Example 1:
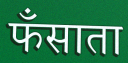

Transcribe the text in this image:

फँसाता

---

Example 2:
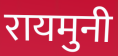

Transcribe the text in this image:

रायमुनी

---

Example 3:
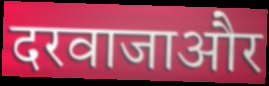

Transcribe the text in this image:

दरवाजाऔर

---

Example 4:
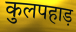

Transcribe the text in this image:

कुलपहाड़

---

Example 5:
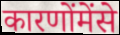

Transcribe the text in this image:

कारणोंमेंसे